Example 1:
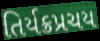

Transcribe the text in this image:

તિર્યક્રપ્રચય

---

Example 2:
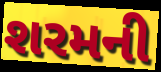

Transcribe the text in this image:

શરમની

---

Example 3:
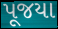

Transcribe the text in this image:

પૂજયા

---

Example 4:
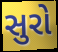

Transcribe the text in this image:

સુરો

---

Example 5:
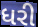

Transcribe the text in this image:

ધરી